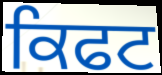
ਕਿਫਟ